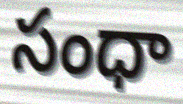
సంధా